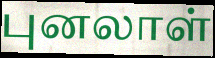
புனலாள்